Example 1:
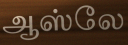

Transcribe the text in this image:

ஆஸ்லே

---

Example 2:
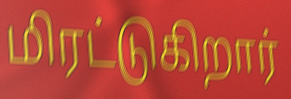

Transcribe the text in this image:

மிரட்டுகிறார்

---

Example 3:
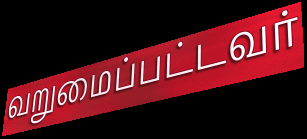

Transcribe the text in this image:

வறுமைப்பட்டவர்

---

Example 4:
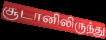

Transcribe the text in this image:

சூடானிலிருந்து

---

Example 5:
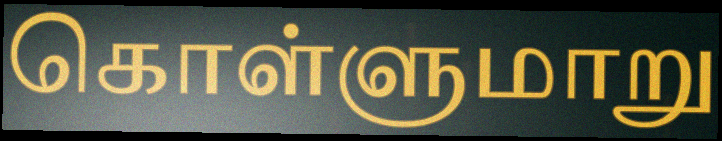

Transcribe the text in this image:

கொள்ளுமாறு